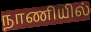
நாணியில்